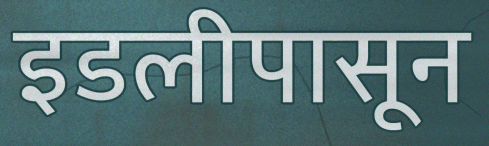
इडलीपासून